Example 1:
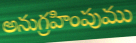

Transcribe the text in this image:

అనుగ్రహింపుము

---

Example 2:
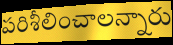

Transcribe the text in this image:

పరిశీలించాలన్నారు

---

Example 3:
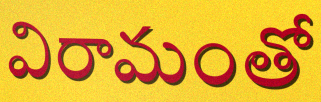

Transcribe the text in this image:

విరామంతో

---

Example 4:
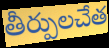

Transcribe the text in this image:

తీర్పులచేత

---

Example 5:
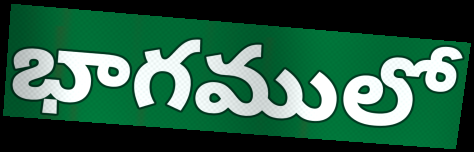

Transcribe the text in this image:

భాగములో